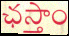
ఛస్తాం